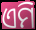
ଏମି